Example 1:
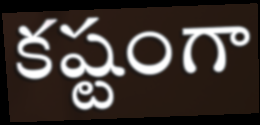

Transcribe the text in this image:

కష్టంగా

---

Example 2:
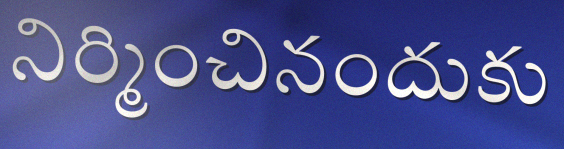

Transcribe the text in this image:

నిర్మించినందుకు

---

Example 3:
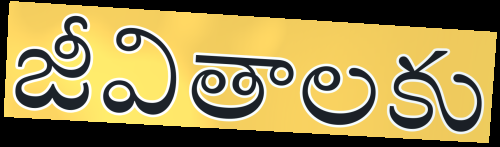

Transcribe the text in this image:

జీవితాలకు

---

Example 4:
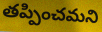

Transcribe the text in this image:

తప్పించమని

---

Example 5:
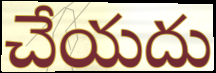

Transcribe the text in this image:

చేయదు